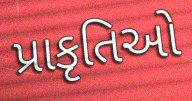
પ્રાકૃતિઓ